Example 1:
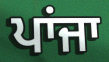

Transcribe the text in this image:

ਪਾਂਜਾ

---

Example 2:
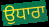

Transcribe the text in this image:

ਉਧਾਰਾ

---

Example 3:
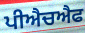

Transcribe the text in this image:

ਪੀਐਚਐਫ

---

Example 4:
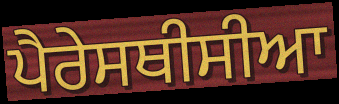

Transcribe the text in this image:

ਪੈਰੇਸਥੀਸੀਆ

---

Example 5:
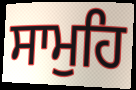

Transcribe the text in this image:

ਸਾਮੁਹਿ